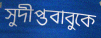
সুদীপ্তবাবুকে